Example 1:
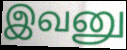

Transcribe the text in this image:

இவனு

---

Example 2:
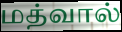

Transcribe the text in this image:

மத்வால்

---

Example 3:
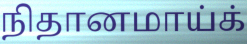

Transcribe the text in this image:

நிதானமாய்க்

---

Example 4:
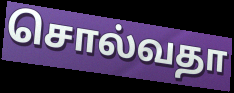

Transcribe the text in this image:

சொல்வதா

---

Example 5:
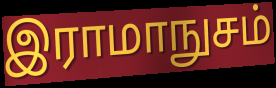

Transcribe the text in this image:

இராமாநுசம்